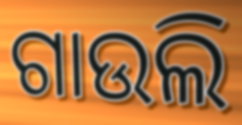
ଗାଉଲି